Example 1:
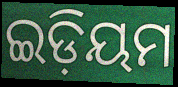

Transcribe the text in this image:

ଇଡ଼ିୟମ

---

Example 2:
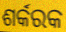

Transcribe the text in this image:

ଶର୍କରକ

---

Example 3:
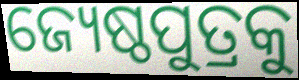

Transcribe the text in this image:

ଜ୍ୟେଷ୍ଠପୁତ୍ରକୁ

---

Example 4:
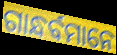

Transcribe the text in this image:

ଗାନ୍ଧର୍ବମାନେ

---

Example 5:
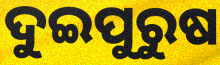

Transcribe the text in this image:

ଦୁଇପୁରୁଷ